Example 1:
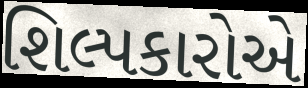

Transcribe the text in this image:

શિલ્પકારોએ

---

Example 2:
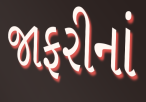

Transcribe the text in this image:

જાફરીનાં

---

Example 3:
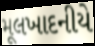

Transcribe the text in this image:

મૂલખાદનીયે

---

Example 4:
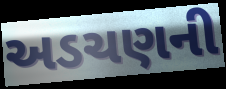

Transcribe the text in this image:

અડચણની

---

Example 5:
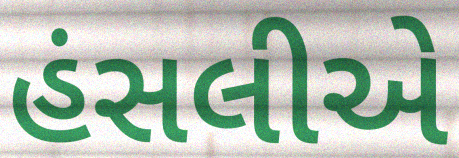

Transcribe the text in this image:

હંસલીએ